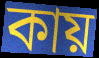
কায়